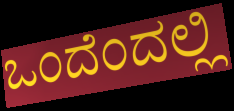
ಒಂದೆಂದಲ್ಲಿ